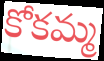
కోకమ్మ